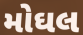
મોઘલ